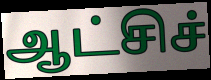
ஆட்சிச்